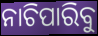
ନାଚିପାରିବୁ